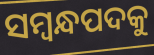
ସମ୍ବନ୍ଧପଦକୁ